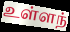
உள்ளந்